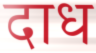
दाध